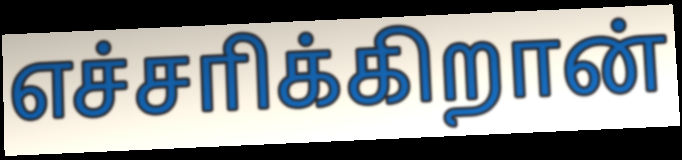
எச்சரிக்கிறான்